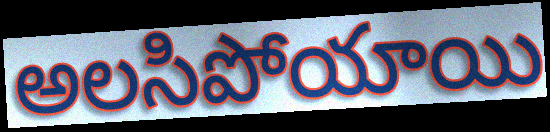
అలసిపోయాయి